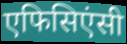
एफिसिएंसी